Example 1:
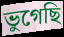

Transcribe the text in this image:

ভুগেছি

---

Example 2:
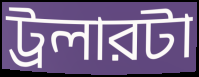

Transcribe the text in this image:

ট্রলারটা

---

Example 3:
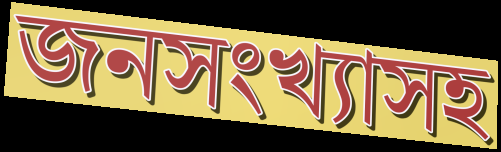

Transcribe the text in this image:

জনসংখ্যাসহ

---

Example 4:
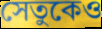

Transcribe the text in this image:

সেতুকেও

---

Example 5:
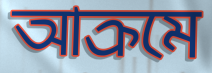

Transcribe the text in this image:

আক্রমে